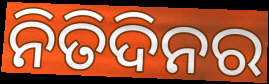
ନିତିଦିନର